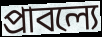
প্রাবল্যে